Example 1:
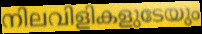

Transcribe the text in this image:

നിലവിളികളുടേയും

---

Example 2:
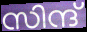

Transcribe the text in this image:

സിന്ദ്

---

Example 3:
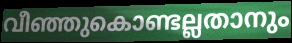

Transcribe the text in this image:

വീഞ്ഞുകൊണ്ടല്ലതാനും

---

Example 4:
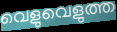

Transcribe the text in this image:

വെളുവെളുത്ത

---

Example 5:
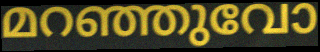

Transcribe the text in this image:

മറഞ്ഞുവോ